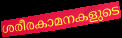
ശരീരകാമനകളുടെ